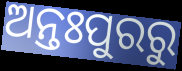
ଅନ୍ତଃପୁରରୁ